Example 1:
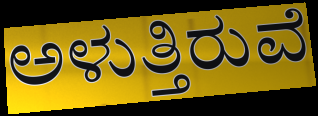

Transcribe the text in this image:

ಅಳುತ್ತಿರುವೆ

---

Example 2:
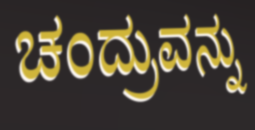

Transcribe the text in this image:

ಚಂದ್ರುವನ್ನು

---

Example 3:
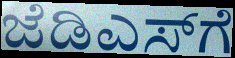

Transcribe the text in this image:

ಜೆಡಿಎಸ್‌ಗೆ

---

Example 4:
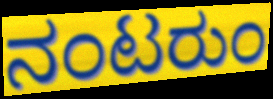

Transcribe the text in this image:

ನಂಟರುಂ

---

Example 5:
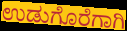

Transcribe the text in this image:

ಉಡುಗೊರೆಗಾಗಿ